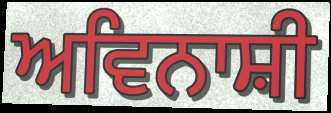
ਅਵਿਨਾਸ਼ੀ